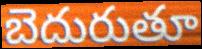
బెదురుతూ